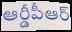
ఆర్డీపీఆర్